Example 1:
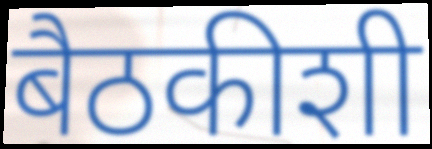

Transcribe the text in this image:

बैठकीशी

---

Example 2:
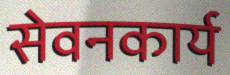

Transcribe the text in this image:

सेवनकार्य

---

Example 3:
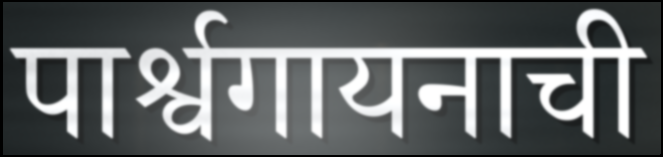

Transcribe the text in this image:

पार्श्वगायनाची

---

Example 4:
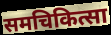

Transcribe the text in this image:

समचिकित्सा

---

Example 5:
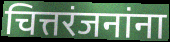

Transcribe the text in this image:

चित्तरंजनांना